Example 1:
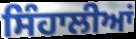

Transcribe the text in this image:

ਸਿੰਹਾਲੀਆਂ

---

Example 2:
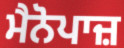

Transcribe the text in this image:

ਮੈਨੋਪਾਜ਼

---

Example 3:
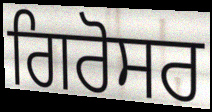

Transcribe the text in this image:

ਗਿਰੋਸਰ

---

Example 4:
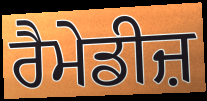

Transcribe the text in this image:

ਰੈਮੇਡੀਜ਼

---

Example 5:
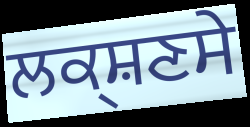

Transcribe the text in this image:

ਲਕ੍ਸ਼ਣਸੇ